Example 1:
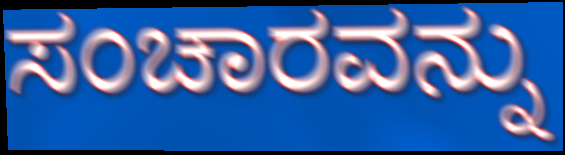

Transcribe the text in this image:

ಸಂಚಾರವನ್ನು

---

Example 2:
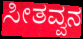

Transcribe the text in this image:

ಸೀತವ್ವನ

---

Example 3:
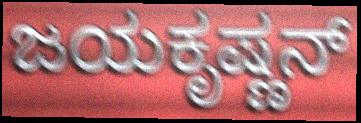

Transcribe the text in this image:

ಜಯಕೃಷ್ಣನ್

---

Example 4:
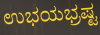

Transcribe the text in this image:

ಉಭಯಭ್ರಷ್ಟ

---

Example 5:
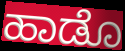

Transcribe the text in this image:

ಹಾಡೊ